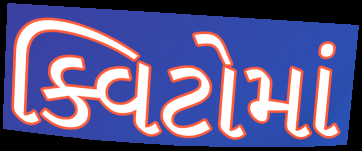
ક્વિટોમાં